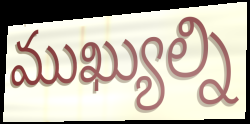
ముఖ్యుల్ని